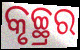
କୃଚ୍ଛ୍ରର